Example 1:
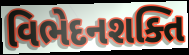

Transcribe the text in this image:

વિભેદનશક્તિ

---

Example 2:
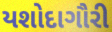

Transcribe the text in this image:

યશોદાગૌરી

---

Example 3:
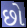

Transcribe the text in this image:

છો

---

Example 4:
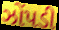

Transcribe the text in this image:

ઝોંપડી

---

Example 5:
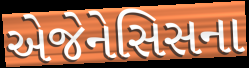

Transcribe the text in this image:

એજેનેસિસના